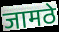
जामठे